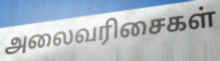
அலைவரிசைகள்